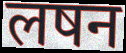
लषन